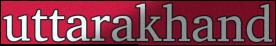
uttarakhand